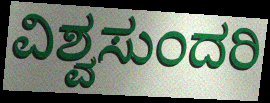
ವಿಶ್ವಸುಂದರಿ